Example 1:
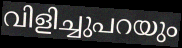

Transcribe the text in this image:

വിളിച്ചുപറയും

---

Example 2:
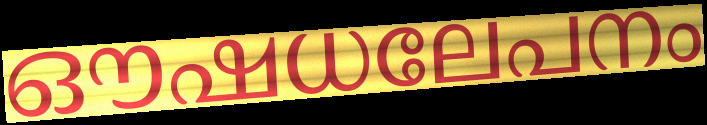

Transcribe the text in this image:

ഔഷധലേപനം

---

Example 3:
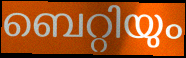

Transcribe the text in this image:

ബെറ്റിയും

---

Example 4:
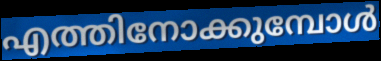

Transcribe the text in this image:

എത്തിനോക്കുമ്പോൾ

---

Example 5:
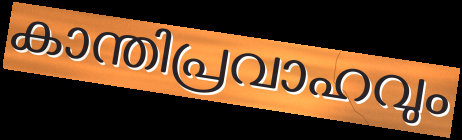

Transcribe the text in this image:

കാന്തിപ്രവാഹവും